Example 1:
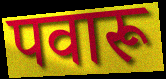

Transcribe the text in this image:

पवारू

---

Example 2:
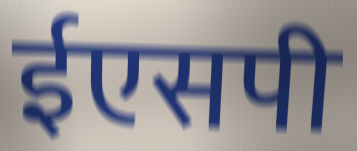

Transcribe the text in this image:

ईएसपी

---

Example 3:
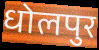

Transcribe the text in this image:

धोलपुर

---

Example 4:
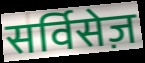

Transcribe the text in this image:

सर्विसेज़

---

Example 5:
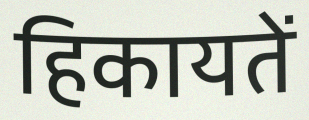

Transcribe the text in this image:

हिकायतें